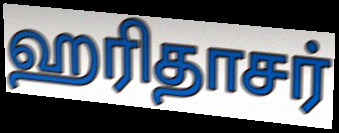
ஹரிதாசர்